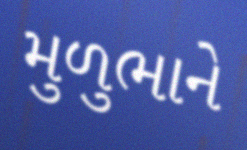
મુળુભાને